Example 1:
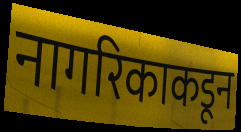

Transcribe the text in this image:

नागरिकाकडून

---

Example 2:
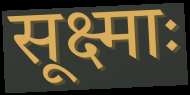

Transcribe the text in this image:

सूक्ष्माः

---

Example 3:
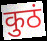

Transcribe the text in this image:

कुठं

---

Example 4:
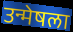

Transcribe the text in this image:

उन्मेषला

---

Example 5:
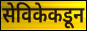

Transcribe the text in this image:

सेविकेकडून